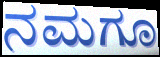
ನಮಗೂ